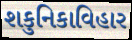
શકુનિકાવિહાર